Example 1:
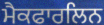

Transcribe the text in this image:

ਮੈਕਫਾਰਲਿਨ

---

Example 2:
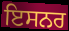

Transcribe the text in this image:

ਇਸਨਰ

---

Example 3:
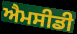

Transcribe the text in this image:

ਐਮਸੀਡੀ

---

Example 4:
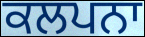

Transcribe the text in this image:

ਕਲਪਨਾ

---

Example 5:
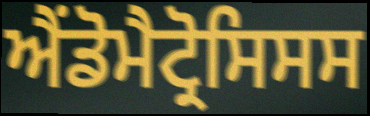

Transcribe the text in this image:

ਐਂਡੋਮੈਟ੍ਰੋਸਿਸਸ